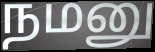
நமனு